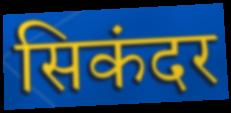
सिकंदर